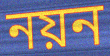
নয়ন